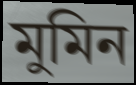
মুমিন